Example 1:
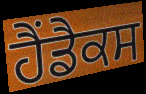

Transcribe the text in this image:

ਹੈਂਡੈਕਸ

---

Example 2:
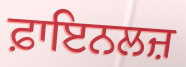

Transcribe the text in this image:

ਫ਼ਾਇਨਲਜ਼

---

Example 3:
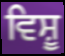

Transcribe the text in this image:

ਵਿਸ਼ੂ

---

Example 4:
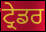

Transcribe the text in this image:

ਟ੍ਰੇਡਰ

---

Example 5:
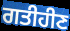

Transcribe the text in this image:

ਗਤੀਹੀਣ